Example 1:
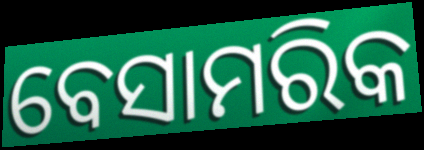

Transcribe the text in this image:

ବେସାମରିକ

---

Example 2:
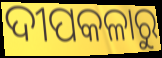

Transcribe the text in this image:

ଦୀପକଳାରୁ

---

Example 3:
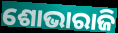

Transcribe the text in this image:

ଶୋଭାରାଜି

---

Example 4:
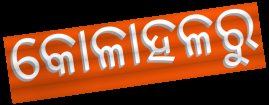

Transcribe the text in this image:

କୋଳାହଳରୁ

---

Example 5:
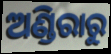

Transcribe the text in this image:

ଅଣ୍ଡିରାରୁ